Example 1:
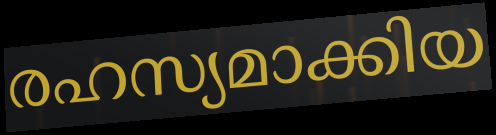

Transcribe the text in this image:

രഹസ്യമാക്കിയ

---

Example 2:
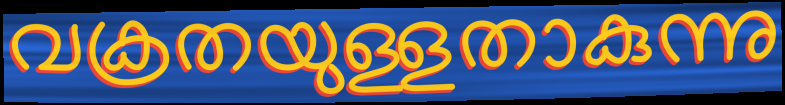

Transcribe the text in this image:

വക്രതയുള്ളതാകുന്നു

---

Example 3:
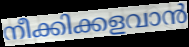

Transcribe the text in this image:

നീക്കിക്കളവാൻ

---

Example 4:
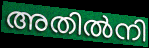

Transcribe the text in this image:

അതിൽനി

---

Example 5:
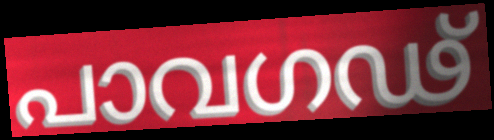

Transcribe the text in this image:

പാവഗഢ്